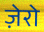
ज़ेरो